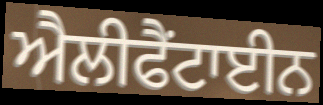
ਐਲੀਫੈਂਟਾਈਨ